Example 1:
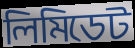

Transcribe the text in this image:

লিমিডেট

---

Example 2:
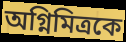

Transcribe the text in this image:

অগ্নিমিত্রকে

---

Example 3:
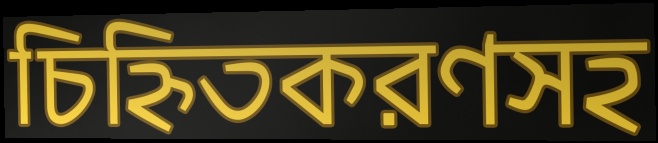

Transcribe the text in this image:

চিহ্নিতকরণসহ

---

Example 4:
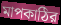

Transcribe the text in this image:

মাপকাঠির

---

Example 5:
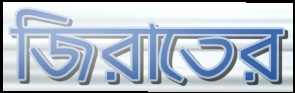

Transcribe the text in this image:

জিরাতের